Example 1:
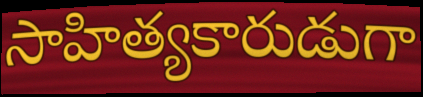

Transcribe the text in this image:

సాహిత్యకారుడుగా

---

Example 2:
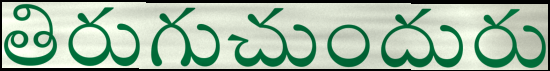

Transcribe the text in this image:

తిరుగుచుందురు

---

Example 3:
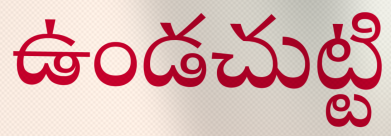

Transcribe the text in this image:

ఉండచుట్టి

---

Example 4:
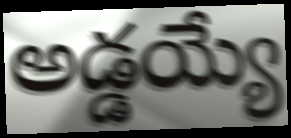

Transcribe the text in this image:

అడ్డయ్యే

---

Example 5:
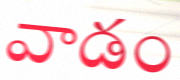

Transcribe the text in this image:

వాడం